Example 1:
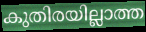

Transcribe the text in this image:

കുതിരയില്ലാത്ത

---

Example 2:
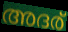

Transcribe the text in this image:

അദര്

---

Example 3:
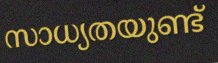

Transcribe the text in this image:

സാധ്യതയുണ്ട്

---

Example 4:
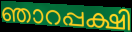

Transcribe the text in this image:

ഞാറപ്പക്ഷി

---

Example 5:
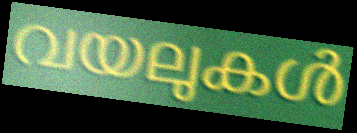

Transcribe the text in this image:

വയലുകൾ